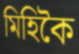
মিহিকৈ